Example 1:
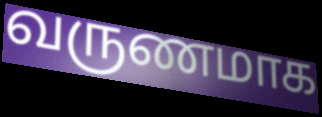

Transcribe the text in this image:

வருணமாக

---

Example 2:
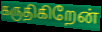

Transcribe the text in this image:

கருதிகிறேன்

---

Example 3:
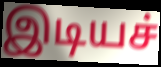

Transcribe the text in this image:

இடியச்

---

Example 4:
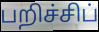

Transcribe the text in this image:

பறிச்சிப்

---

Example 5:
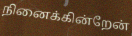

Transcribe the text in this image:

நினைக்கின்றேன்